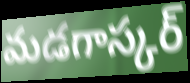
మడగాస్కర్